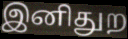
இனிதுற